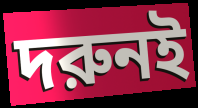
দরুনই